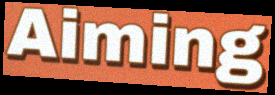
Aiming